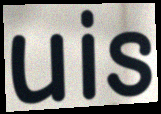
uis